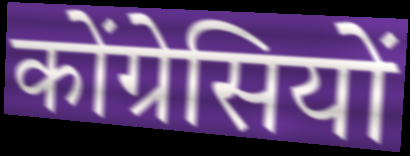
कोंग्रेसियों